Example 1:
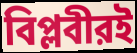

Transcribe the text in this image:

বিপ্লবীরই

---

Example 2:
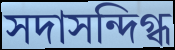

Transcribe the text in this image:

সদাসন্দিগ্ধ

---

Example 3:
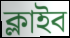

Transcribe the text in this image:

ক্লাইব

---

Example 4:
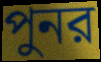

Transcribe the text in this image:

পুনর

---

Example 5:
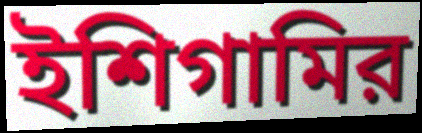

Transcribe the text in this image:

ইশিগামির